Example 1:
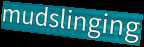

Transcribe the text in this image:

mudslinging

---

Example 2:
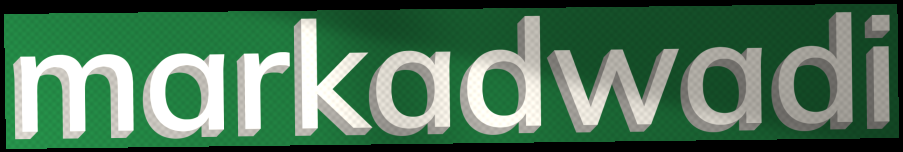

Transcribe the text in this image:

markadwadi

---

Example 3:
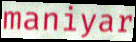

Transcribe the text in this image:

maniyar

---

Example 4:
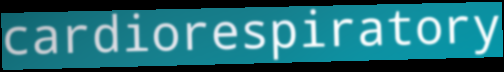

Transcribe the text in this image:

cardiorespiratory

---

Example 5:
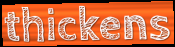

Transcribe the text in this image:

thickens